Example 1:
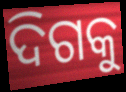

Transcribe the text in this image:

ଦିଗକୁ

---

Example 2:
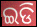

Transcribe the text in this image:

ଇଡି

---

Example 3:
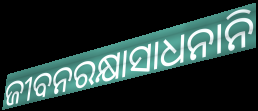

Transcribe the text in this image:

ଜୀବନରକ୍ଷାସାଧନାନି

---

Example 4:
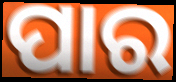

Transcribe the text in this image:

ପାର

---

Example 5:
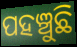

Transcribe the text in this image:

ପହଞ୍ଚୁଛି